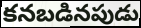
కనబడినపుడు